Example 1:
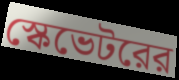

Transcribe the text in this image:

স্কেভেটরের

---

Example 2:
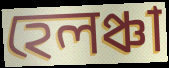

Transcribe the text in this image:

হেলঞ্চা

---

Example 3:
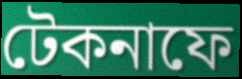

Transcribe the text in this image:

টেকনাফে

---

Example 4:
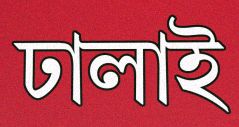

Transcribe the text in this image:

ঢালাই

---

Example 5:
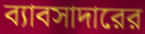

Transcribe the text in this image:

ব্যাবসাদারের